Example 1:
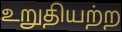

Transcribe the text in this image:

உறுதியற்ற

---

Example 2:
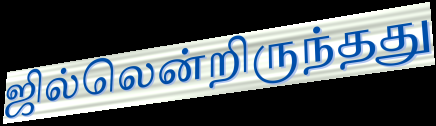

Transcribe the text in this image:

ஜில்லென்றிருந்தது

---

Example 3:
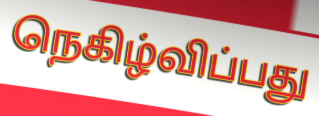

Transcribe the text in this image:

நெகிழ்விப்பது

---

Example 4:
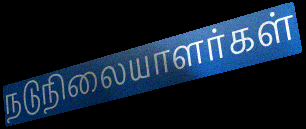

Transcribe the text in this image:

நடுநிலையாளர்கள்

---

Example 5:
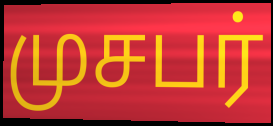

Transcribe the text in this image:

முசபர்